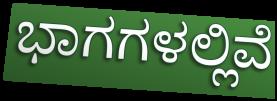
ಭಾಗಗಳಲ್ಲಿವೆ